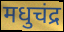
मधुचंद्र